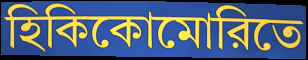
হিকিকোমোরিতে